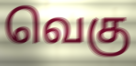
வெகு